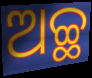
ଅଚ୍ଛ